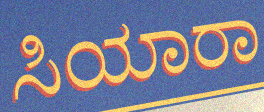
ಸಿಯಾರಾ